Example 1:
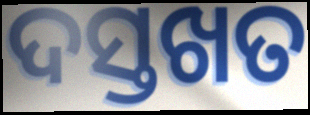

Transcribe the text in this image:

ଦସ୍ତଖତ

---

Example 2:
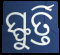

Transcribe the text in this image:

ସ୍ଫୁର୍ତ୍ତି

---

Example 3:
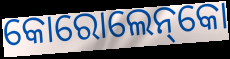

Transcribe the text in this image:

କୋରୋଲେନ୍‌କୋ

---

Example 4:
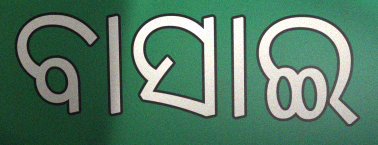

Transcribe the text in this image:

ବାସାଇ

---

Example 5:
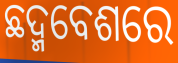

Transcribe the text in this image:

ଛଦ୍ମବେଶରେ